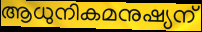
ആധുനികമനുഷ്യന്